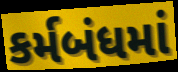
કર્મબંધમાં